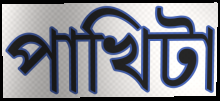
পাখিটা